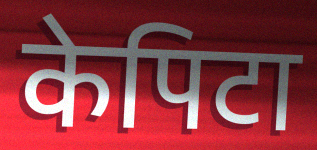
केपिटा